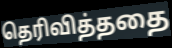
தெரிவித்ததை